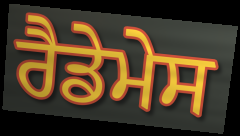
ਰੈਡੇਮੇਸ